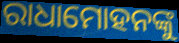
ରାଧାମୋହନଙ୍କୁ